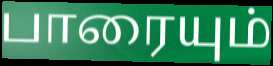
பாரையும்